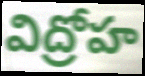
విద్రోహ